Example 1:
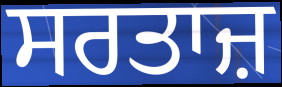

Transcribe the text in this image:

ਸਰਤਾਜ਼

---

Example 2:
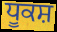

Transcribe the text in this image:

ਧੂਕਸ਼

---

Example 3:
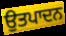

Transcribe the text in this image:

ਉਤਪਾਦਨ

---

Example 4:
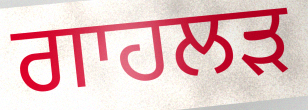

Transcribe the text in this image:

ਗਾਹਲੜ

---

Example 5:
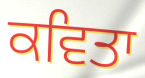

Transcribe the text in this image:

ਕਵਿਤਾ